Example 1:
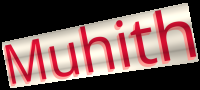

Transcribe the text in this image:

Muhith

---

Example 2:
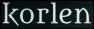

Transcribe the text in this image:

korlen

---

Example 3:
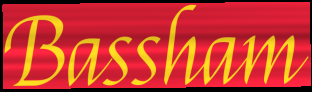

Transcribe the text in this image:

Bassham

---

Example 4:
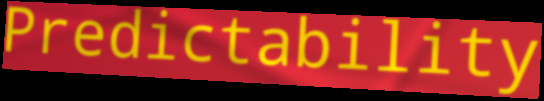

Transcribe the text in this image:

Predictability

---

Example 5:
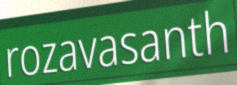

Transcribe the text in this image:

rozavasanth